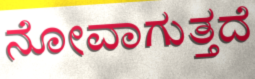
ನೋವಾಗುತ್ತದೆ